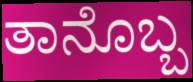
ತಾನೊಬ್ಬ